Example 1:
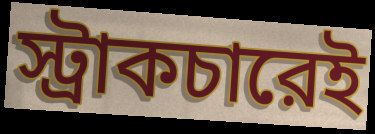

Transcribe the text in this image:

স্ট্রাকচারেই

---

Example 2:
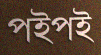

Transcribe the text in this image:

পইপই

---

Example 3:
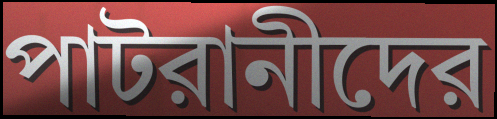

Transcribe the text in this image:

পাটরানীদের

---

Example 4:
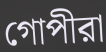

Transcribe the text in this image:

গোপীরা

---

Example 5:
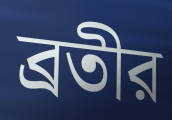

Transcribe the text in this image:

ব্রতীর